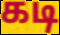
கடி